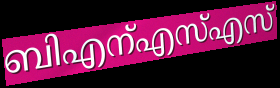
ബിഎന്എസ്എസ്